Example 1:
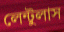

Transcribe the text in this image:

লেন্টুলাস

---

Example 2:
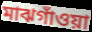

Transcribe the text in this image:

মাঝগাঁওয়া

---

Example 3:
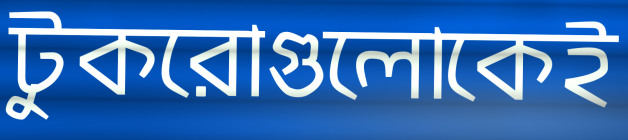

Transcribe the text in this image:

টুকরোগুলোকেই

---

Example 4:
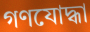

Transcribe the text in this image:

গণযোদ্ধা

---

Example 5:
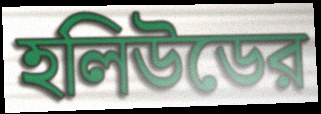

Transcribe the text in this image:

হলিউডের